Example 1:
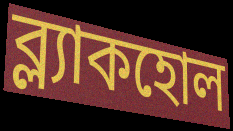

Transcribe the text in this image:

ব্ল্যাকহোল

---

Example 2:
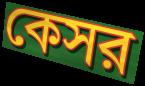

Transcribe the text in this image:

কেসর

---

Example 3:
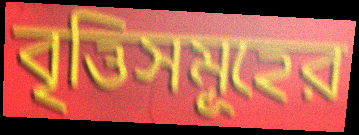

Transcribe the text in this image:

বৃত্তিসমূহের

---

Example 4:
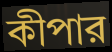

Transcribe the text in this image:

কীপার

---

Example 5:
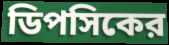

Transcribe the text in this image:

ডিপসিকের